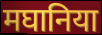
मघानिया